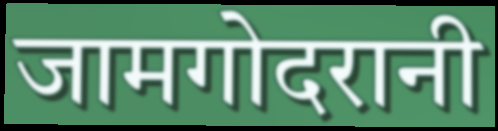
जामगोदरानी